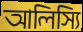
আলিস্যি